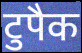
टुपैक